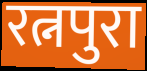
रत्नपुरा